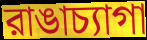
রাঙাচ্যাগা